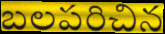
బలపరిచిన